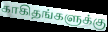
காகிதங்களுக்கு